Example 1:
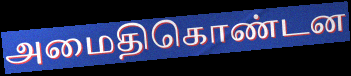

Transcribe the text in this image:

அமைதிகொண்டன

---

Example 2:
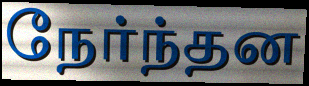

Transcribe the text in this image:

நேர்ந்தன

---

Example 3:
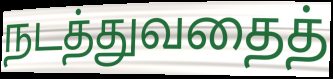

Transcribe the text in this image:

நடத்துவதைத்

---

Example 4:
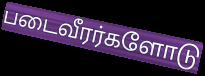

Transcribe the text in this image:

படைவீரர்களோடு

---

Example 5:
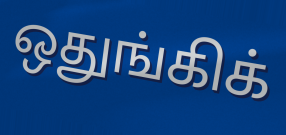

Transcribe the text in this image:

ஒதுங்கிக்